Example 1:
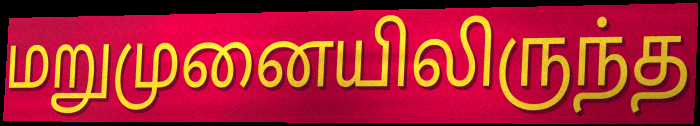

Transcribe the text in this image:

மறுமுனையிலிருந்த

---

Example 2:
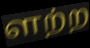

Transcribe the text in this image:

ளற்ற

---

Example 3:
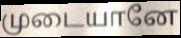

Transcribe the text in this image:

முடையானே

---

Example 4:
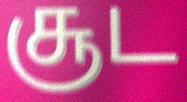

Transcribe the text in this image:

சூட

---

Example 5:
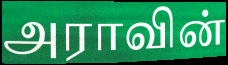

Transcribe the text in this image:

அராவின்